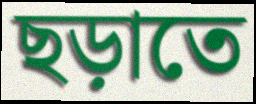
ছড়াতে